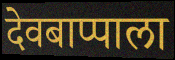
देवबाप्पाला